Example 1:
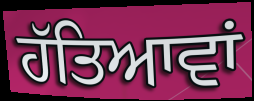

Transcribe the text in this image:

ਹੱਤਿਆਵਾਂ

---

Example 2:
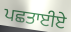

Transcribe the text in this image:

ਪਛਤਾਈਏ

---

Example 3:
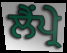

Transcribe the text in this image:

ਲੈਂਪ੍ਰੇ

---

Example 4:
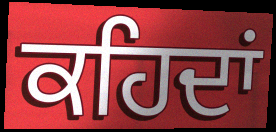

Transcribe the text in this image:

ਕਹਿਦਾਂ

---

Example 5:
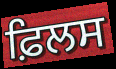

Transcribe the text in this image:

ਫ਼ਿਲਸ